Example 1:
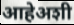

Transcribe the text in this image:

आहेअशी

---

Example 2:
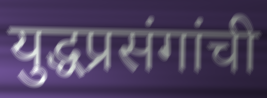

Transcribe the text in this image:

युद्धप्रसंगांची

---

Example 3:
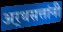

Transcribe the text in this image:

अर्थसत्तांनी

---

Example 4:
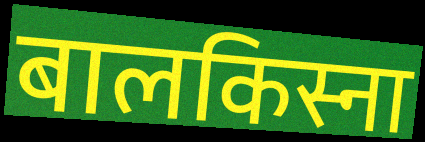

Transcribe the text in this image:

बालकिस्ना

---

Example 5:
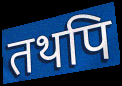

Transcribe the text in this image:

तथपि